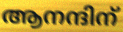
ആനന്ദിന്